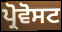
ਪ੍ਰੋਵੋਸਟ